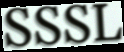
SSSL